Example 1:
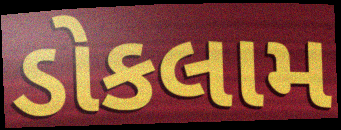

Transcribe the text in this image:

ડોકલામ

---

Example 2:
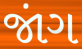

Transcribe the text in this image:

જાંગ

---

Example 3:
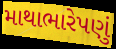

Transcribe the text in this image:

માથાભારેપણું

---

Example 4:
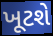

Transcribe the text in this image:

ખૂટશે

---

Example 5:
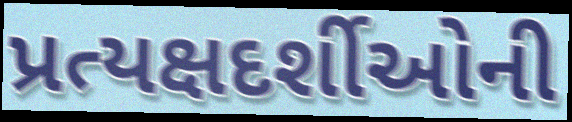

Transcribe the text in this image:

પ્રત્યક્ષદર્શીઓની